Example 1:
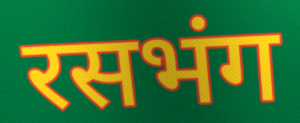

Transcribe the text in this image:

रसभंग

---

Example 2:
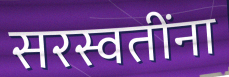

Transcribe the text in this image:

सरस्वतींना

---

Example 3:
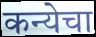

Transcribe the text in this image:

कन्येचा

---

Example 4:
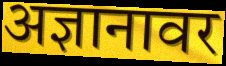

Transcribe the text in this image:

अज्ञानावर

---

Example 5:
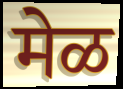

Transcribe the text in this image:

मेळ